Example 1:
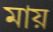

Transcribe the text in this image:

মায়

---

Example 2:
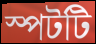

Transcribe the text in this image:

স্পটটি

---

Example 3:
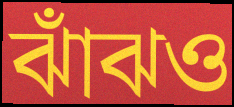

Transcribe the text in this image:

ঝাঁঝও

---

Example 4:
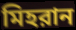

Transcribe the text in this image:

মিহরান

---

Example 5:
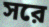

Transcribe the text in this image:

সরে